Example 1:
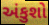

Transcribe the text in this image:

અંકુશો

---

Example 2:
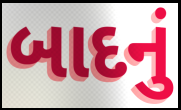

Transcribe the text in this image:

બાદનું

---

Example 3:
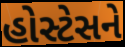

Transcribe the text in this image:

હોસ્ટેસને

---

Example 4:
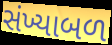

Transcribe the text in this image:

સંખ્યાબળ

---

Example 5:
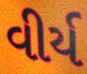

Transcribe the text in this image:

વીર્ય